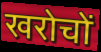
खरोचों